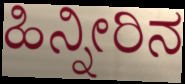
ಹಿನ್ನೀರಿನ